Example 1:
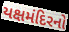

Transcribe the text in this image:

યક્ષમંદિરનો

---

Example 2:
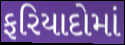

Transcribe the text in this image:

ફરિયાદોમાં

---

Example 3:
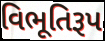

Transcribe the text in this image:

વિભૂતિરૂપ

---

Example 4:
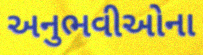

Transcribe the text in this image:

અનુભવીઓના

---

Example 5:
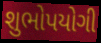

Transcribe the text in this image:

શુભોપયોગી